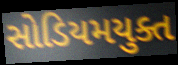
સોડિયમયુક્ત